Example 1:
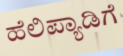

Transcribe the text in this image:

ಹೆಲಿಪ್ಯಾಡಿಗೆ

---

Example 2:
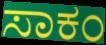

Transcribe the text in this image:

ಸಾಕಂ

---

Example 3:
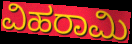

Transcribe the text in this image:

ವಿಹರಾಮಿ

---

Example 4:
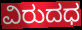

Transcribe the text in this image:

ವಿರುದಧ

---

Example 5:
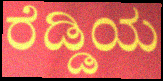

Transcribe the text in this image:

ರೆಡ್ಡಿಯ